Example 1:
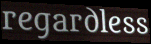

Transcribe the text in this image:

regardless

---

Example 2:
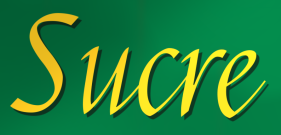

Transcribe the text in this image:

Sucre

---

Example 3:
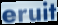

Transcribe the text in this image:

eruit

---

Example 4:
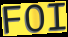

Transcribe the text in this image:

FOI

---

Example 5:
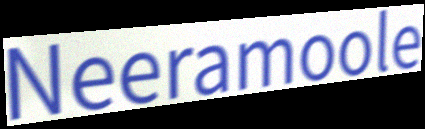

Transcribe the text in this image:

Neeramoole